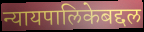
न्यायपालिकेबद्दल